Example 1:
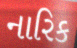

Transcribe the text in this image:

નારિક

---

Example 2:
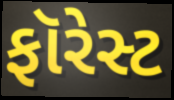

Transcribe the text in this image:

ફૉરેસ્ટ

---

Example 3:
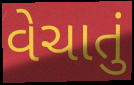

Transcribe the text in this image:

વેચાતું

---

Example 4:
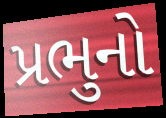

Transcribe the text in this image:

પ્રભુનો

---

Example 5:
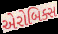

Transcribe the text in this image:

એરોબિક્સ